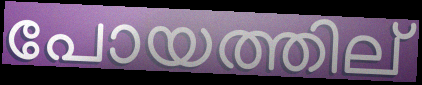
പോയത്തില്